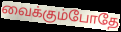
வைக்கும்போதே